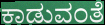
ಕಾಡುವಂತೆ